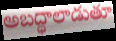
అబద్ధాలాడుతూ